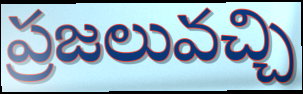
ప్రజలువచ్చి